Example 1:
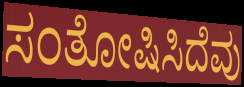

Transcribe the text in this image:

ಸಂತೋಷಿಸಿದೆವು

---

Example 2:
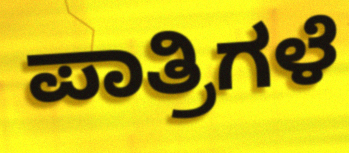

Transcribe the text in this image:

ಪಾತ್ರಿಗಳೆ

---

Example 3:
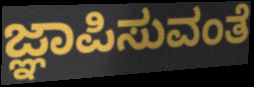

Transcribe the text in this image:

ಜ್ಞಾಪಿಸುವಂತೆ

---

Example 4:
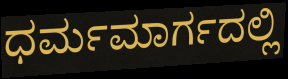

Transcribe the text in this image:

ಧರ್ಮಮಾರ್ಗದಲ್ಲಿ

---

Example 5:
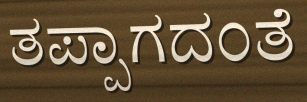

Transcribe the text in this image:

ತಪ್ಪಾಗದಂತೆ